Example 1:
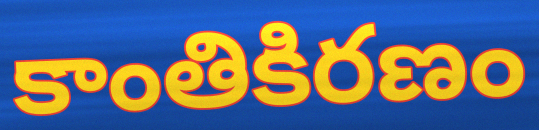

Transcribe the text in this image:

కాంతికిరణం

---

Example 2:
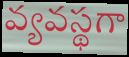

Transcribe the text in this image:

వ్యవస్థగా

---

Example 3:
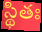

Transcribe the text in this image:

స్థితః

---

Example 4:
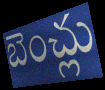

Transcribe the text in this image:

బెంచ్లు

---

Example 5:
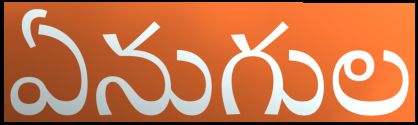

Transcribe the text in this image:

ఏనుగుల